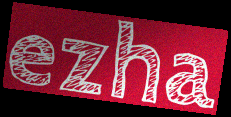
ezha